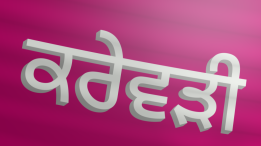
ਕਰੇਵੜੀ